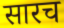
सारच